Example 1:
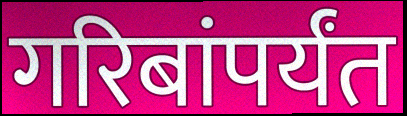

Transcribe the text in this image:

गरिबांपर्यंत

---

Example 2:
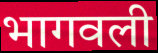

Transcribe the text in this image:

भागवली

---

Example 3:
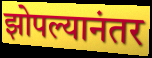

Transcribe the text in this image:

झोपल्यानंतर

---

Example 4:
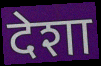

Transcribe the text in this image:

देशा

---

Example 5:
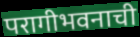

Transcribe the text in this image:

परागीभवनाची